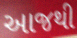
આજથી